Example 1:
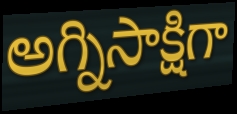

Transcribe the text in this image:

అగ్నిసాక్షిగా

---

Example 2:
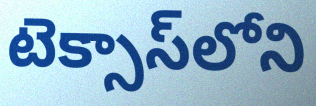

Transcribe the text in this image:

టెక్సాస్‌లోని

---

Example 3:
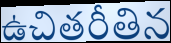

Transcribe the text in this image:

ఉచితరీతిన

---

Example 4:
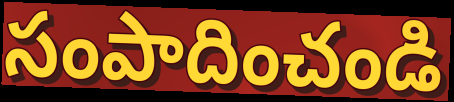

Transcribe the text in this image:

సంపాదించండి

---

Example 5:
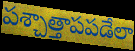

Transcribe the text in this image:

పశ్చాత్తాపపడేలా